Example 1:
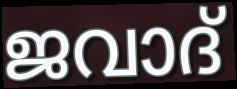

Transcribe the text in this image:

ജവാദ്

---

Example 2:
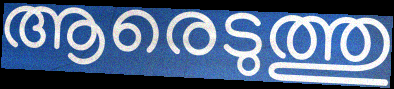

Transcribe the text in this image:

ആരെടുത്തു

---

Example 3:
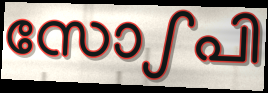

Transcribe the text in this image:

സോഽപി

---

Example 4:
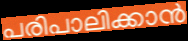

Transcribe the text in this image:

പരിപാലിക്കാൻ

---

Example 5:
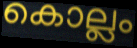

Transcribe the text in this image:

കൊല്ലം